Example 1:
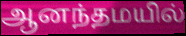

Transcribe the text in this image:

ஆனந்தமயில்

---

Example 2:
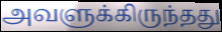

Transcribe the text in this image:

அவளுக்கிருந்தது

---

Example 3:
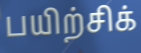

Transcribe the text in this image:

பயிற்சிக்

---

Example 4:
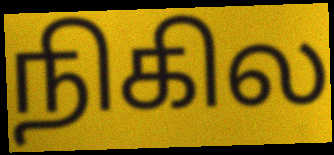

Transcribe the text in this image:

நிகில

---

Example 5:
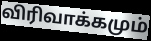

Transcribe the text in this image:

விரிவாக்கமும்